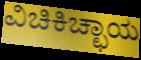
ವಿಚಿಕಿಚ್ಛಾಯ